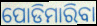
ପୋଡିମାରିବା